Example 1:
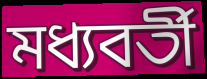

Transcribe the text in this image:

মধ্যবৰ্তী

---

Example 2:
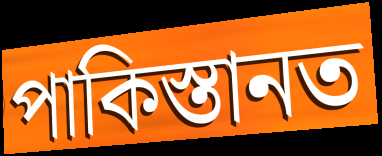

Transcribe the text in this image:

পাকিস্তানত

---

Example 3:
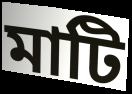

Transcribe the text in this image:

মাটি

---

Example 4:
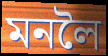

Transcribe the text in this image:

মনলৈ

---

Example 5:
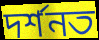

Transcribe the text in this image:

দৰ্শনত